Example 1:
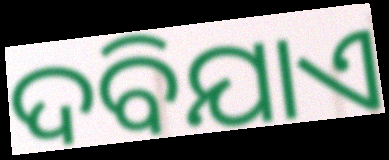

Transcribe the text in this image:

ଦବିଯାଏ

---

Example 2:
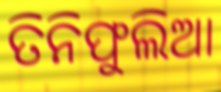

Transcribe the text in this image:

ତିନିଫୁଲିଆ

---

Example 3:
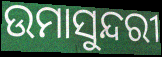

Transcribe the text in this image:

ଉମାସୁନ୍ଦରୀ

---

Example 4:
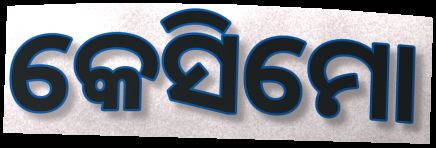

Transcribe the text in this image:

କେସିମୋ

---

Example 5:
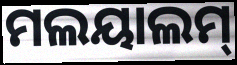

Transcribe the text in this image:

ମଲୟାଲମ୍